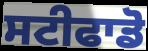
ਸਟੀਫਾਡੋ